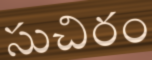
సుచిరం